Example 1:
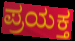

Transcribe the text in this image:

ಪ್ರಯಕ್ತ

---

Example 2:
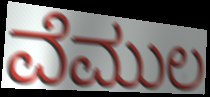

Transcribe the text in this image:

ವೆಮುಲ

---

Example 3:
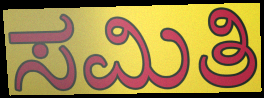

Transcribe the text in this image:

ಸಮಿತಿ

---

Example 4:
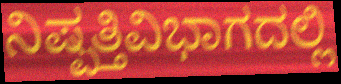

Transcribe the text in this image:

ನಿಷ್ಪತ್ತಿವಿಭಾಗದಲ್ಲಿ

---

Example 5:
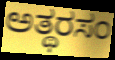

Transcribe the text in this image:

ಅತ್ಥರಸಂ